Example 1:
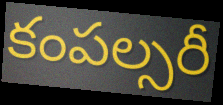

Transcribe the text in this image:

కంపల్సరీ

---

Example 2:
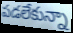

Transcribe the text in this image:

పడలేకున్నా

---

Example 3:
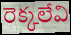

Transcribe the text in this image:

రెక్కలేవి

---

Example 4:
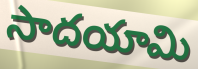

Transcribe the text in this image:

సాదయామి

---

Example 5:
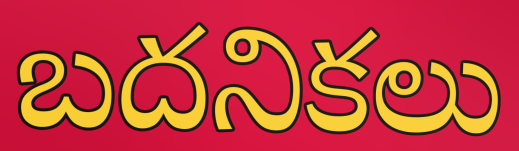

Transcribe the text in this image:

బదనికలు